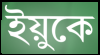
ইয়ুকে